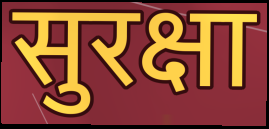
सुरक्षा